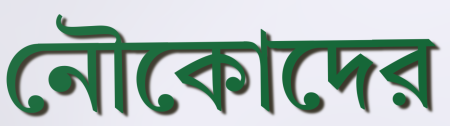
নৌকোদের